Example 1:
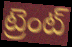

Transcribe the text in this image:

ట్రెంట్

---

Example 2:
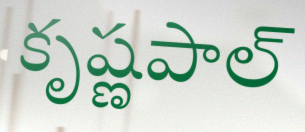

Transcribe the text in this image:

కృష్ణపాల్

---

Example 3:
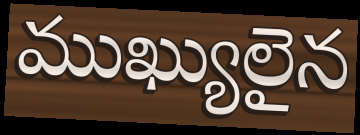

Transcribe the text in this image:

ముఖ్యులైన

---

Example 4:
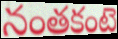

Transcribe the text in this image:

నంతకంటె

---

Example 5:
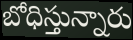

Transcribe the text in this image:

బోధిస్తున్నారు